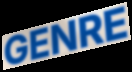
GENRE